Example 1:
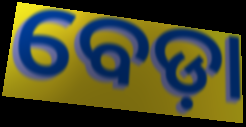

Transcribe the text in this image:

ବେଡ଼ା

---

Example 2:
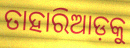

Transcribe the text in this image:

ତାହାରିଆଡ଼କୁ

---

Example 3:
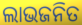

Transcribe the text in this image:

ଲାଭଜନିତ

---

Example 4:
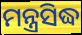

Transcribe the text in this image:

ମନ୍ତ୍ରସିଦ୍ଧ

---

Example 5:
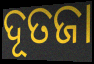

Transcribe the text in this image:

ଦୂତଜା